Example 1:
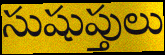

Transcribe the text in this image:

సుషుప్తులు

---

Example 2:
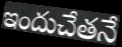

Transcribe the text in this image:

ఇందుచేతనే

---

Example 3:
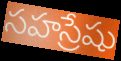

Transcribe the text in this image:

సహస్రేషు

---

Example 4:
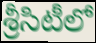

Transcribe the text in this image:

శ్రీసిటీలో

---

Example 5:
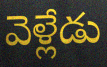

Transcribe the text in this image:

వెళ్లేడు